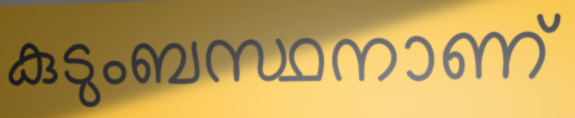
കുടുംബസ്ഥനാണ്